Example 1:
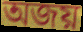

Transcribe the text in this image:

অজয়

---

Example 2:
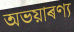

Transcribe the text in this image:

অভয়াৰণ্য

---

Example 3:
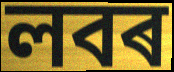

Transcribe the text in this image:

লবৰ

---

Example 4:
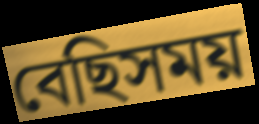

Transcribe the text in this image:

বেছিসময়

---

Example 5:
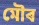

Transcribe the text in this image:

মৌৰ